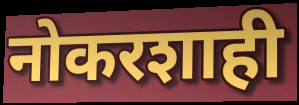
नोकरशाही